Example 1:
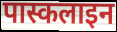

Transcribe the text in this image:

पास्कलाइन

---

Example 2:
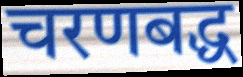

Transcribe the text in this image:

चरणबद्ध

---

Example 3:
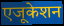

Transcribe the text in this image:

एजूकेशन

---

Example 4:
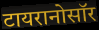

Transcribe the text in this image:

टायरानोसॉर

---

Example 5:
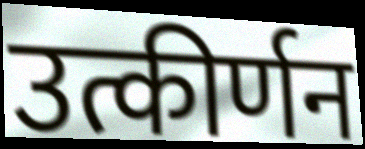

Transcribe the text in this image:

उत्कीर्णन